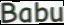
Babu